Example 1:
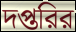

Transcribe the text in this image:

দপ্তরির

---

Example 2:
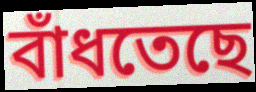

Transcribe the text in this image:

বাঁধতেছে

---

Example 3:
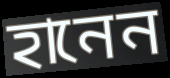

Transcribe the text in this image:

হানেন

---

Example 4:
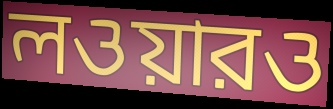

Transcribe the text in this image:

লওয়ারও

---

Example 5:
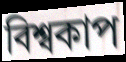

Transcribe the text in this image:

বিশ্বকাপ